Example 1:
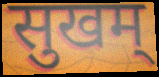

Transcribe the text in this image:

सुखम्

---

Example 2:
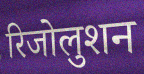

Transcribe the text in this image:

रिजोलुशन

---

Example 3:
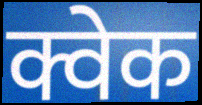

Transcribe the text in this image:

क्वेक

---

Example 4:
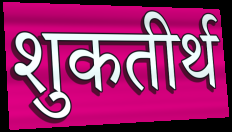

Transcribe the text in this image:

शुकतीर्थ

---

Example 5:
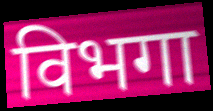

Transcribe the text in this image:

विभगा